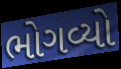
ભોગવ્યો